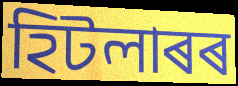
হিটলাৰৰ